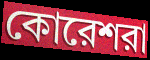
কোরেশরা